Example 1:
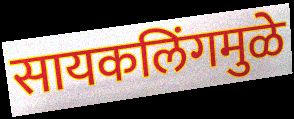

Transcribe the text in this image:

सायकलिंगमुळे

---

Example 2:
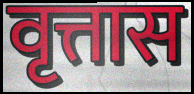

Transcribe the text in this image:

वृत्तास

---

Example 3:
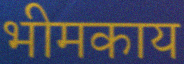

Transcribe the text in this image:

भीमकाय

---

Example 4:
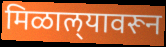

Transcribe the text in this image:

मिळाल्यावरून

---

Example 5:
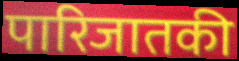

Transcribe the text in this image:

पारिजातकी